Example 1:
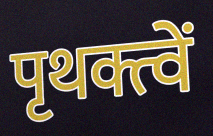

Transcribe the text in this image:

पृथक्त्वें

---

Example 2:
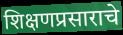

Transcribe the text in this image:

शिक्षणप्रसाराचे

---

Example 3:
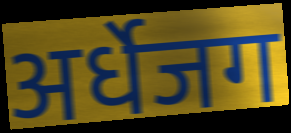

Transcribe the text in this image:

अर्धेजग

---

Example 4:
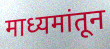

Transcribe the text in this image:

माध्यमांतून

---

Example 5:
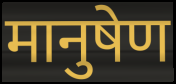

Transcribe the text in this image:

मानुषेण